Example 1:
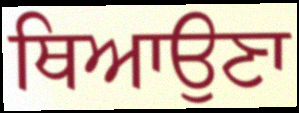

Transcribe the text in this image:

ਥਿਆਉਣਾ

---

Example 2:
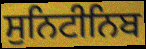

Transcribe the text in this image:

ਸੁਨਿਟੀਨਿਬ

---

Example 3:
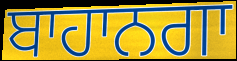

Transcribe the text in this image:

ਬਾਹਾਨਗਾ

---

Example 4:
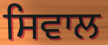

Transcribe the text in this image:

ਸਿਵਾਲ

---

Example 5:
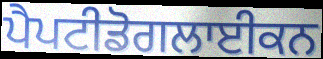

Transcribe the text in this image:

ਪੈਪਟੀਡੋਗਲਾਈਕਨ